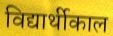
विद्यार्थीकाल